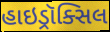
હાઇડ્રૉક્સિલ